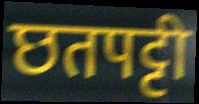
छतपट्टी